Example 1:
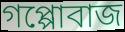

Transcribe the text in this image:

গপ্পোবাজ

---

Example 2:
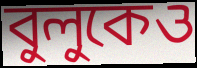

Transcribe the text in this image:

বুলুকেও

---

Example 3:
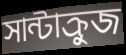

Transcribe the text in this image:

সান্টাক্রুজ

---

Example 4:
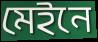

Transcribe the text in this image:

মেইনে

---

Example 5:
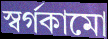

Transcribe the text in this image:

স্বর্গকামো